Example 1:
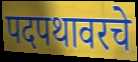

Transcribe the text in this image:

पदपथावरचे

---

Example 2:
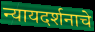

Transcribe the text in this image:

न्यायदर्शनाचे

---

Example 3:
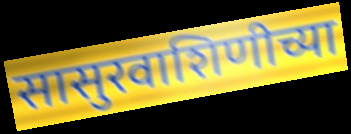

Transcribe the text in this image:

सासुरवाशिणीच्या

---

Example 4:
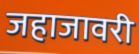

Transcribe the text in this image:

जहाजावरी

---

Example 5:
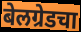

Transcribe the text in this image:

बेलग्रेडचा